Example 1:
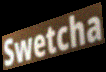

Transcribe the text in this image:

Swetcha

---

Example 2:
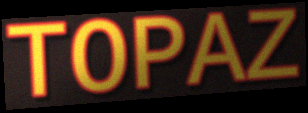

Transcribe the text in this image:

TOPAZ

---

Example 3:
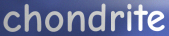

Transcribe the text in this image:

chondrite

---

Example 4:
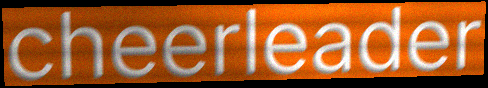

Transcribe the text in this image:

cheerleader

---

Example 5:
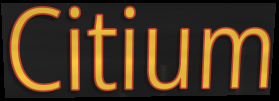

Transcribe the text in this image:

Citium